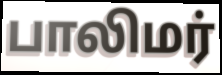
பாலிமர்